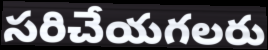
సరిచేయగలరు